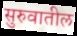
सुरुवातील